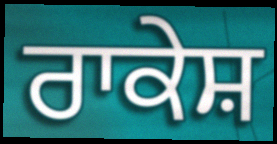
ਰਾਕੇਸ਼